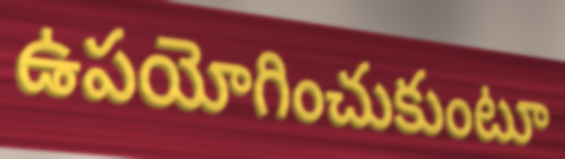
ఉపయోగించుకుంటూ